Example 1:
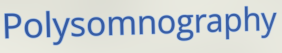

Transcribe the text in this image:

Polysomnography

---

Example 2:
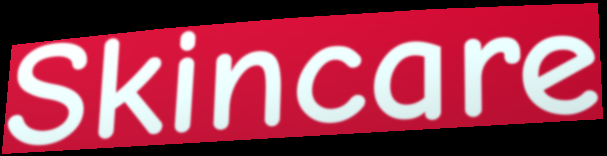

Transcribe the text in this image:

Skincare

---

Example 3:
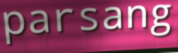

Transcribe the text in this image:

parsang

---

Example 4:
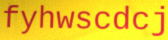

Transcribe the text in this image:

fyhwscdcj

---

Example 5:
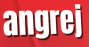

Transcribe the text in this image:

angrej